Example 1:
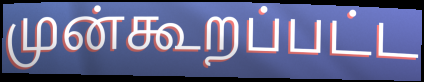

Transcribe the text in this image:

முன்கூறப்பட்ட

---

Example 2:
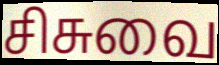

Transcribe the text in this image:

சிசுவை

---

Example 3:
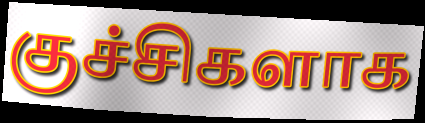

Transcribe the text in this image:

குச்சிகளாக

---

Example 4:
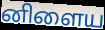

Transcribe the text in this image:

னிளைய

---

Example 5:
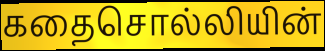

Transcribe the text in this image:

கதைசொல்லியின்